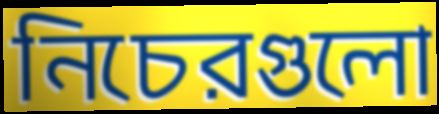
নিচেরগুলো